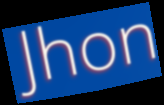
Jhon